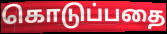
கொடுப்பதை